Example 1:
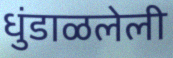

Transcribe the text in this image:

धुंडाळलेली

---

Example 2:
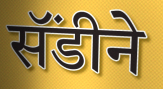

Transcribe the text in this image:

सॅंडीने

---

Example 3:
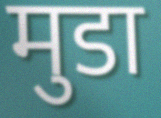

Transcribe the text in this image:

मुडा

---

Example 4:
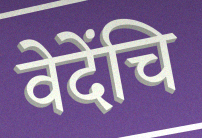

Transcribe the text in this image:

वेदेंचि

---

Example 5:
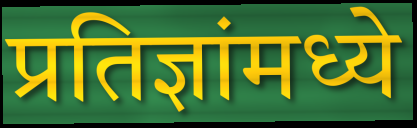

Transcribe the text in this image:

प्रतिज्ञांमध्ये